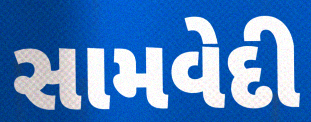
સામવેદી